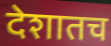
देशातच